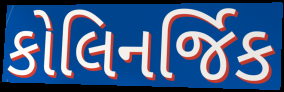
કોલિનર્જિક